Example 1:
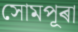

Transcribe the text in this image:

সোমপূৰা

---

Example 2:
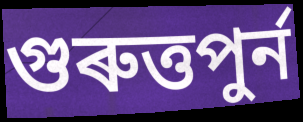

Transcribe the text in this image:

গুৰুত্তপুৰ্ন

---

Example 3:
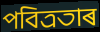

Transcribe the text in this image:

পবিত্ৰতাৰ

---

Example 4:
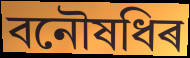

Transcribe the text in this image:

বনৌষধিৰ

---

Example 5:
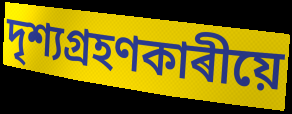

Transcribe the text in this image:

দৃশ্যগ্ৰহণকাৰীয়ে